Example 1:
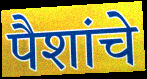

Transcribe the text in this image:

पैशांचे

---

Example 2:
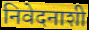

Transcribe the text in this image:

निवेदनाशी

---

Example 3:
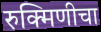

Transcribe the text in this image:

रुक्मिणीचा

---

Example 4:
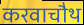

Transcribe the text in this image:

करवाचौथ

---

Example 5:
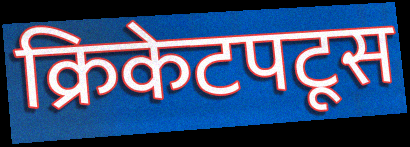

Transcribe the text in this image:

क्रिकेटपटूस